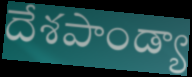
దేశపాండ్యా